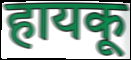
हायकू